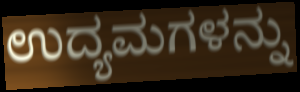
ಉದ್ಯಮಗಳನ್ನು